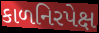
કાળનિરપેક્ષ